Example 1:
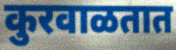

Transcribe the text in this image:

कुरवाळतात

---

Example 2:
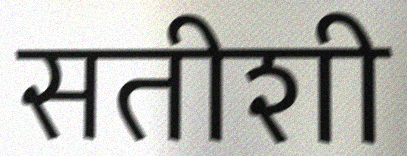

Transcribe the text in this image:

सतीशी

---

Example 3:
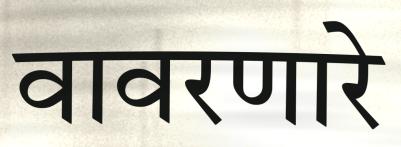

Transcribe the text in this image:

वावरणारे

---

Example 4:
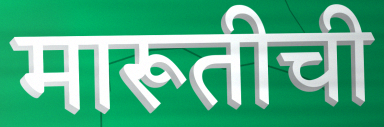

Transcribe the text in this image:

मारूतीची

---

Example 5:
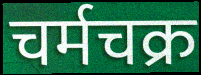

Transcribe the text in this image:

चर्मचक्र